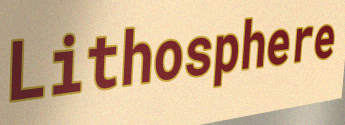
Lithosphere